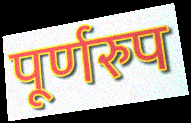
पूर्णरुप